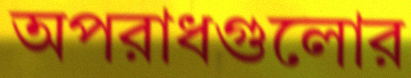
অপরাধগুলোর